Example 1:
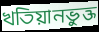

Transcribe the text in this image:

খতিয়ানভুক্ত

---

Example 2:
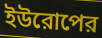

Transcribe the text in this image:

ইউরোপের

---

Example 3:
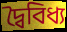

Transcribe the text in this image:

দ্বৈবিধ্য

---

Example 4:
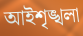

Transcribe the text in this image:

আইশৃঙ্খলা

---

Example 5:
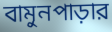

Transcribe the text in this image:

বামুনপাড়ার